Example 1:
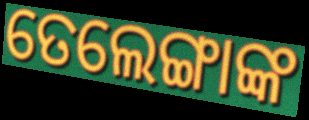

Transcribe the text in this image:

ତେଲେଙ୍ଗାଙ୍କ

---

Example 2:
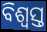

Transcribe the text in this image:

ବିଶ୍ଵସ୍ତ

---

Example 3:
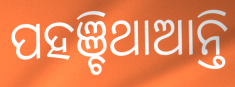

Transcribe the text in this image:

ପହଞ୍ଚିଥାଆନ୍ତି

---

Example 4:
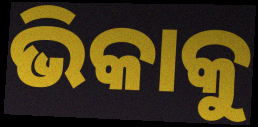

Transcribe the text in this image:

ଭିକାକୁ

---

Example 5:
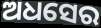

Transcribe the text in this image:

ଅଧସେର